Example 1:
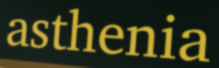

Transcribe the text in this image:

asthenia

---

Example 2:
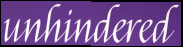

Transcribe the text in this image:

unhindered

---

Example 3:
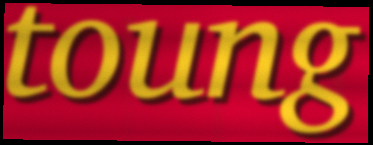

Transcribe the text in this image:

toung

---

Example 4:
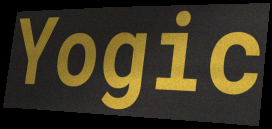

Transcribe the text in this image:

Yogic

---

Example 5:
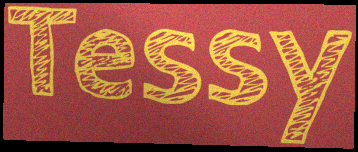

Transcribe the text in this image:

Tessy